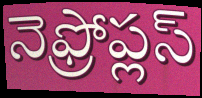
నెఫ్రోప్లస్